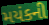
મયંકની